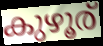
കുഴൂര്